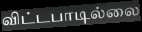
விட்டபாடில்லை